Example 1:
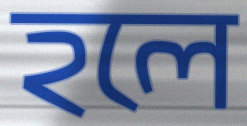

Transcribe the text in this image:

হলে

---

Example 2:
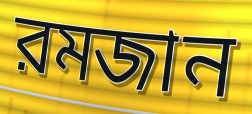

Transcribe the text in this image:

রমজান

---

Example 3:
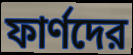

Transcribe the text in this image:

ফার্ণদের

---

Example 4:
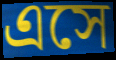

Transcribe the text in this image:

এসে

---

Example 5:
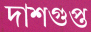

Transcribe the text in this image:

দাশগুপ্ত